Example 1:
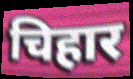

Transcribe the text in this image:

चिहार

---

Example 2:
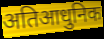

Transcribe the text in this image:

अतिआधुनिक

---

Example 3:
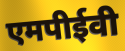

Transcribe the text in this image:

एमपीईवी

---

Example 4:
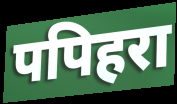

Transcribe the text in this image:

पपिहरा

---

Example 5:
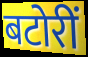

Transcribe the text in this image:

बटोरीं